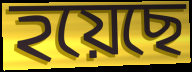
হয়েছে